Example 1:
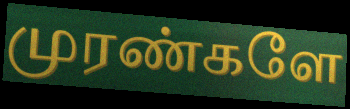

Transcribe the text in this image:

முரண்களே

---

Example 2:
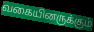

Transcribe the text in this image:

வகையினருக்கும்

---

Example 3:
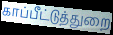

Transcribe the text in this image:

காப்பீட்டுத்துறை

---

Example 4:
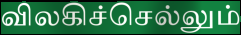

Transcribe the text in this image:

விலகிச்செல்லும்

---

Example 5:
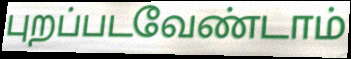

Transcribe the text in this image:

புறப்படவேண்டாம்